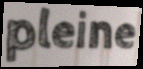
pleine